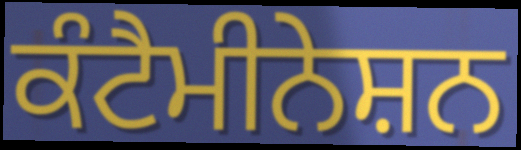
ਕੰਟੈਮੀਨੇਸ਼ਨ